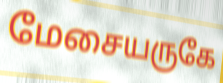
மேசையருகே